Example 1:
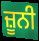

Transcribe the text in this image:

ਜ਼ੂਨੀ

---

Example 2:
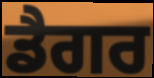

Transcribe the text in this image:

ਡੈਗਰ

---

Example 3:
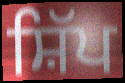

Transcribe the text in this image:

ਸ਼ਿੱਪ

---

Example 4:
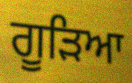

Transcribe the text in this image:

ਗੂੜਿਆ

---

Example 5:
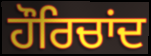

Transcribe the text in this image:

ਹੌਰਿਚਾਂਦ